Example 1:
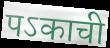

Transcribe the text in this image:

पऽकाची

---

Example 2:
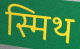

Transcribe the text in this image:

स्मिथ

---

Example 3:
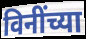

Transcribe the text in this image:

विनींच्या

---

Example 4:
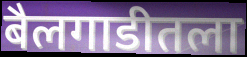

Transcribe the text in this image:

बैलगाडीतला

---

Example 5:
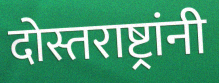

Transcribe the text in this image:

दोस्तराष्ट्रांनी